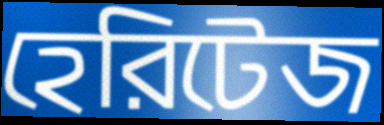
হেরিটেজ